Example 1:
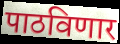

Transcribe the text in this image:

पाठविणार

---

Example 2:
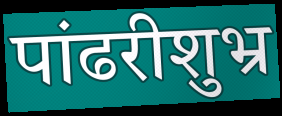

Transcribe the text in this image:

पांढरीशुभ्र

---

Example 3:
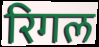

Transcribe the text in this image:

रिगल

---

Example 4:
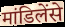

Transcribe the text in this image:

मांडिलेंसे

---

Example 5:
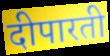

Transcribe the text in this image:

दीपारती